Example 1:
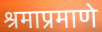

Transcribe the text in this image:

श्रमाप्रमाणे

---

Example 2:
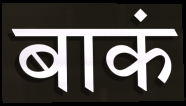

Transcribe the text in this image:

बाकं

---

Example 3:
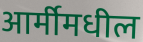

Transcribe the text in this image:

आर्मीमधील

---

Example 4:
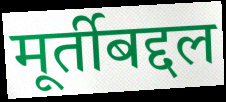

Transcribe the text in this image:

मूर्तीबद्दल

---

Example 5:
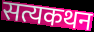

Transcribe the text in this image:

सत्यकथन